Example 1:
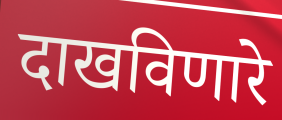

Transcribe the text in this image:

दाखविणारे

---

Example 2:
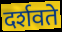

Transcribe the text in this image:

दर्शवते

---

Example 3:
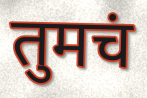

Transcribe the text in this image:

तुमचं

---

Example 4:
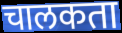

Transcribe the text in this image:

चालकता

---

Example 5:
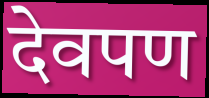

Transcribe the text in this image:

देवपण